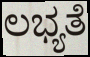
ಲಭ್ಯತೆ